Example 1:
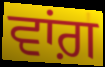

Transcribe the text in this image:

ਵਾਂਗ਼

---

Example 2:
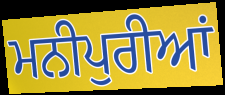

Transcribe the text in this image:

ਮਨੀਪੁਰੀਆਂ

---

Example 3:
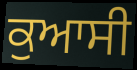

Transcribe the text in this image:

ਕੁਆਸੀ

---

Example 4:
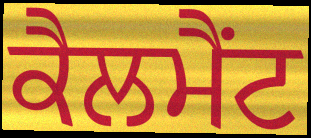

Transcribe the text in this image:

ਕੈਲਮੈਂਟ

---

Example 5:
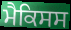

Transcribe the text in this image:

ਮੈਕਿਸਸ